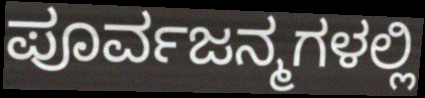
ಪೂರ್ವಜನ್ಮಗಳಲ್ಲಿ